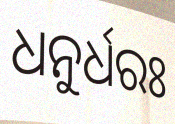
ଧନୁର୍ଧରଃ